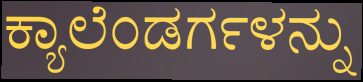
ಕ್ಯಾಲೆಂಡರ್ಗಳನ್ನು